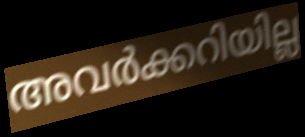
അവർക്കറിയില്ല